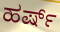
ಹರ್ಷ್